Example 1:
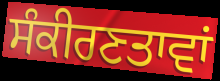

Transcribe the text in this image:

ਸੰਕੀਰਣਤਾਵਾਂ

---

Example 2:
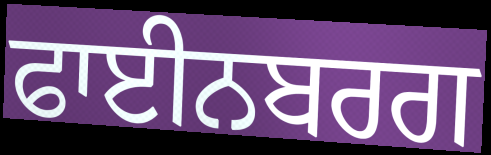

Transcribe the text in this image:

ਫਾਈਨਬਰਗ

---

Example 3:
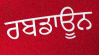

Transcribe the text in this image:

ਰਬਡਾਊਨ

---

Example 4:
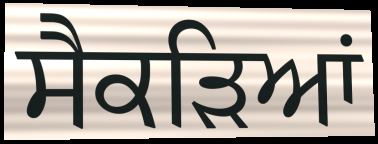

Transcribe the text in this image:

ਸੈਕੜਿਆਂ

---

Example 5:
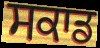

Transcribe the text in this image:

ਸਕਾਡ